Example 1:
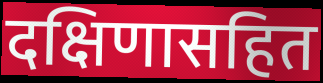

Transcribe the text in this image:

दक्षिणासहित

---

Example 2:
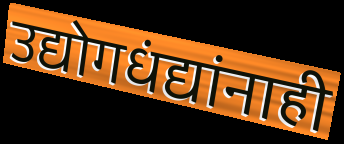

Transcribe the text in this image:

उद्योगधंद्यांनाही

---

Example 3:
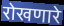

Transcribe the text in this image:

रोखणारे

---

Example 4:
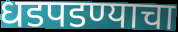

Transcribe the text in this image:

धडपडण्याचा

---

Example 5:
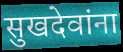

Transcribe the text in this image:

सुखदेवांना